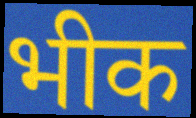
भीक